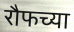
रौफच्या